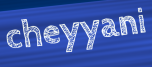
cheyyani